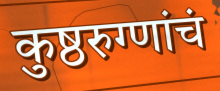
कुष्ठरुग्णांचं